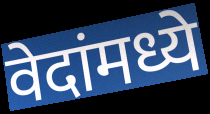
वेदांमध्ये